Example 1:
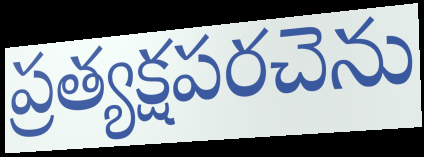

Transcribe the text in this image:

ప్రత్యక్షపరచెను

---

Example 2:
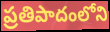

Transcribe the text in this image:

ప్రతిపాదంలోని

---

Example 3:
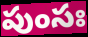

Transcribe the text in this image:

పుంసః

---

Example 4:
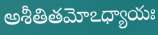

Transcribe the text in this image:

అశీతితమోఽధ్యాయః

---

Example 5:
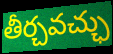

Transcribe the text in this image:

తీర్చవచ్ఛు